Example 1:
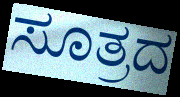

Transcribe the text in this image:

ಸೂತ್ರದ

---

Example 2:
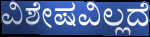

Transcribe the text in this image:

ವಿಶೇಷವಿಲ್ಲದೆ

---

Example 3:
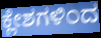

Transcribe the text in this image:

ಕ್ಲೇಶಗಳಿಂದ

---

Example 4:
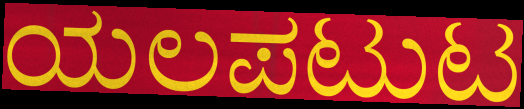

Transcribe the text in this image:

ಯಲಪಟುಟ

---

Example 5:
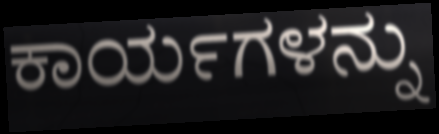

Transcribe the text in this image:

ಕಾರ್ಯಗಳನ್ನು